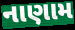
નાણામ